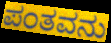
ಪಂತವನು